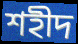
শহীদ